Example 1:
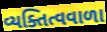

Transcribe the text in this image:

વ્યક્તિત્વવાળા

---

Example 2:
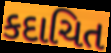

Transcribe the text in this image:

કદાચિત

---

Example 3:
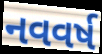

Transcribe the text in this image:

નવવર્ષ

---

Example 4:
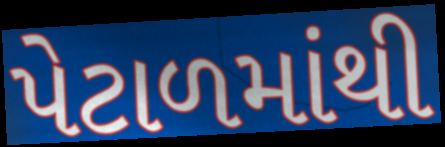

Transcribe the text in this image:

પેટાળમાંથી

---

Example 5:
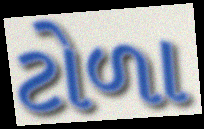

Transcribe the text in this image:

ટોળા